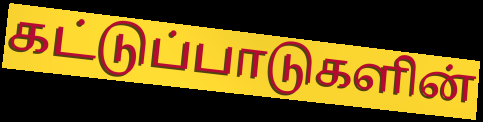
கட்டுப்பாடுகளின்